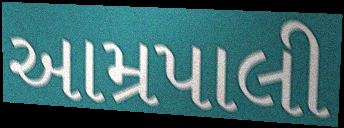
આમ્રપાલી